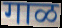
गाळ